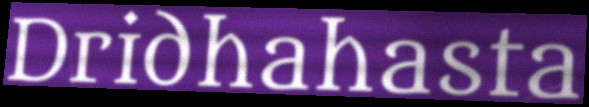
Dridhahasta